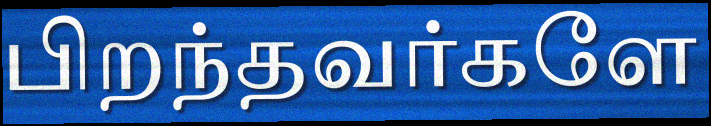
பிறந்தவர்களே